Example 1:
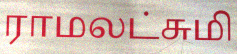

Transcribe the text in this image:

ராமலட்சுமி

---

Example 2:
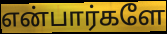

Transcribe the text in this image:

என்பார்களே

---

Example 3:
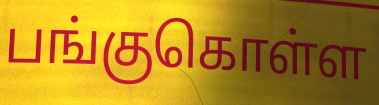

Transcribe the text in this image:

பங்குகொள்ள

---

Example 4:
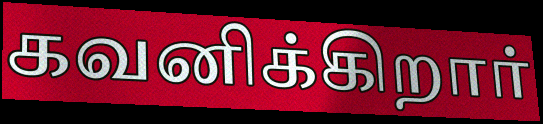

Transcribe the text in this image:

கவனிக்கிறார்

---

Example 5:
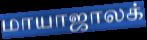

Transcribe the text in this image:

மாயாஜாலக்